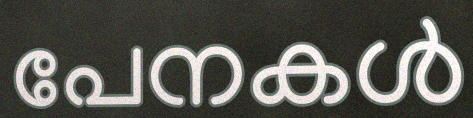
പേനകൾ